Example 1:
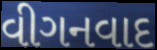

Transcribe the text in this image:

વીગનવાદ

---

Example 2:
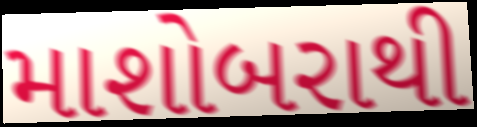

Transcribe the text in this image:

માશોબરાથી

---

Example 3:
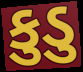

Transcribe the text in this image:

કુડુ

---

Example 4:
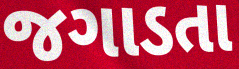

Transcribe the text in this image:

જગાડતા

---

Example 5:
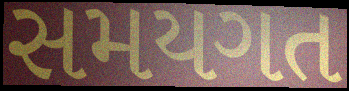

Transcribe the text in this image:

સમયગત